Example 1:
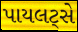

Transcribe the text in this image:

પાયલટ્સે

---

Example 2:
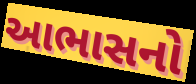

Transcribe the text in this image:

આભાસનો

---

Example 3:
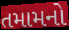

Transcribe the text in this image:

તમામનો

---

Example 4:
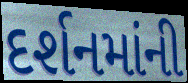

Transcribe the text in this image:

દર્શનમાંની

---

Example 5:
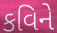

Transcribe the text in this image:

કવિને